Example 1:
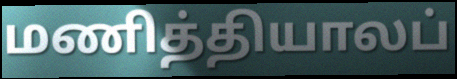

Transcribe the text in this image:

மணித்தியாலப்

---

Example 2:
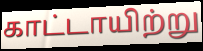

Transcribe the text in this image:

காட்டாயிற்று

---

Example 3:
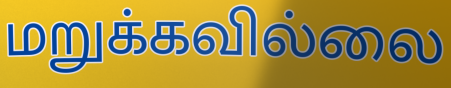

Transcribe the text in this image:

மறுக்கவில்லை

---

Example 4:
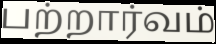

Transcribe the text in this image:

பற்றார்வம்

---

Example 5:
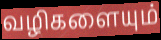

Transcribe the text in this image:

வழிகளையும்